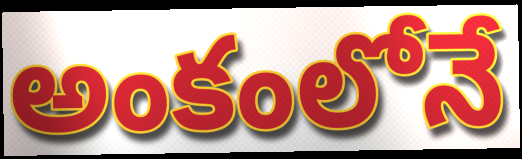
అంకంలోనే